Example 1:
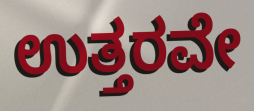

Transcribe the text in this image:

ಉತ್ತರವೇ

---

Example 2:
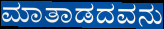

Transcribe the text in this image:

ಮಾತಾಡದವನು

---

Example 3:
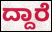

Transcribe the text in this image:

ದ್ದಾರೆ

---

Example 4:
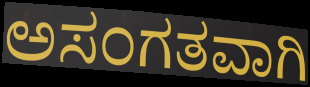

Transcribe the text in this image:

ಅಸಂಗತವಾಗಿ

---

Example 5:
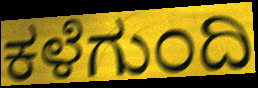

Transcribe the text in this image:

ಕಳೆಗುಂದಿ